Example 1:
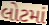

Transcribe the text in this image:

લોટમાં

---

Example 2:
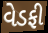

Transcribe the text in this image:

વેડફી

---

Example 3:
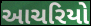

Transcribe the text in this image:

આચરિયો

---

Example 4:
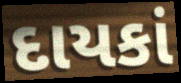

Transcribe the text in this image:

દાયકાં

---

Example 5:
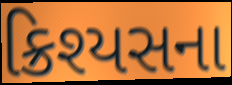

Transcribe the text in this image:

ક્રિશ્યસના